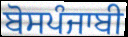
ਬੋਸਪੰਜਾਬੀ